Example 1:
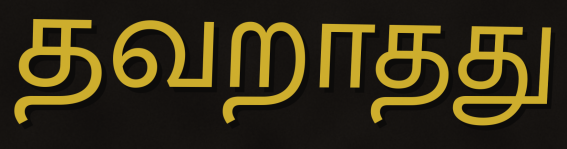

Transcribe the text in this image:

தவறாதது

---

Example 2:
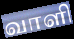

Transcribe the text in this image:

வாளி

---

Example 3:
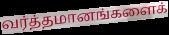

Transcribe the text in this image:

வர்த்தமானங்களைக்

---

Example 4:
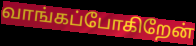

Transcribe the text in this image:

வாங்கப்போகிறேன்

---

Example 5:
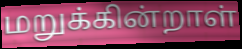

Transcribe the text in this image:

மறுக்கின்றாள்